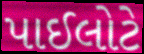
પાઈલોટે